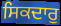
ਸਿਕਦਾਰੁ